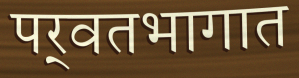
पर्वतभागात